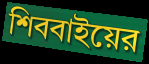
শিববাইয়ের